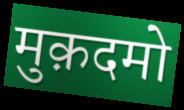
मुक़दमो